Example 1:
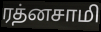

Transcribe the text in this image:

ரத்னசாமி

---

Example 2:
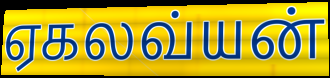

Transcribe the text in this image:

ஏகலவ்யன்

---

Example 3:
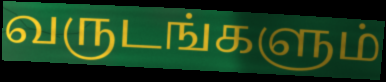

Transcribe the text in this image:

வருடங்களும்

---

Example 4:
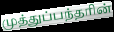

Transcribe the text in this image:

முத்துப்பந்தரின்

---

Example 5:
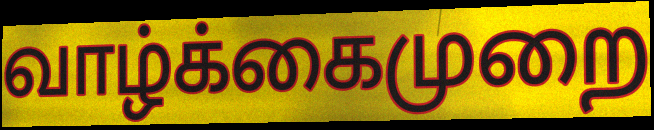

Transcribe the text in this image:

வாழ்க்கைமுறை